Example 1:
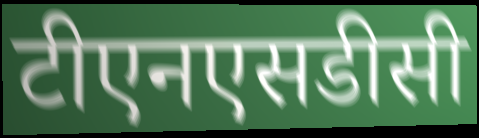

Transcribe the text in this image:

टीएनएसडीसी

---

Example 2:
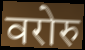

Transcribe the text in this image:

वरोरु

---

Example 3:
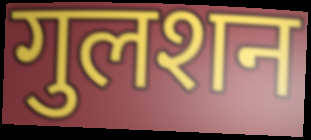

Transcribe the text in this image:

गुलशन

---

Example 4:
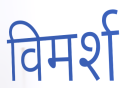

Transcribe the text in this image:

विमर्श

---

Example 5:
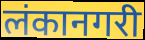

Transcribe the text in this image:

लंकानगरी